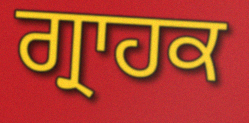
ਗ੍ਰਾਹਕ